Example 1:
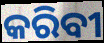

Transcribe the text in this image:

କରିବୀ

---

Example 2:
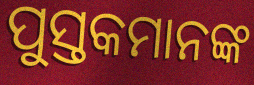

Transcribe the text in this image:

ପୁସ୍ତକମାନଙ୍କ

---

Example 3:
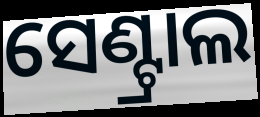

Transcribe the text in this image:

ସେଣ୍ଟ୍ରାଲ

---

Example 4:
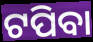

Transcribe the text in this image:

ଟପିବା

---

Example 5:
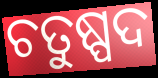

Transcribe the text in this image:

ଚତୁଷ୍ପଦ